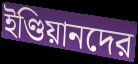
ইণ্ডিয়ানদের